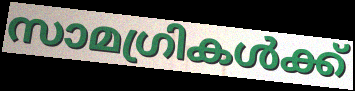
സാമഗ്രികൾക്ക്